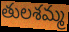
తులశమ్మ